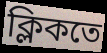
ক্লিকতে